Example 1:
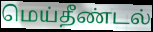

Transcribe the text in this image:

மெய்தீண்டல்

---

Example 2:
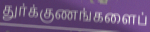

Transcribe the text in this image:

துர்க்குணங்களைப்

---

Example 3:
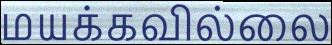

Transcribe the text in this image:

மயக்கவில்லை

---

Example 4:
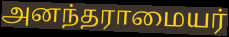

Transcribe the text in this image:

அனந்தராமையர்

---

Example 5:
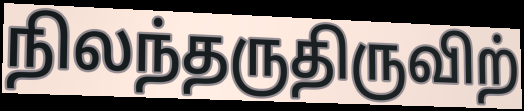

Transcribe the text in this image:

நிலந்தருதிருவிற்